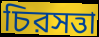
চিরসত্তা